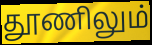
தூணிலும்